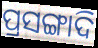
ପ୍ରସଙ୍ଗାଦି